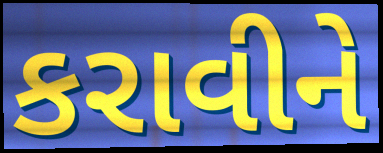
કરાવીને